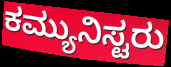
ಕಮ್ಯುನಿಸ್ಟರು